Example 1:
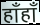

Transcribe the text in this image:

हाँहाँ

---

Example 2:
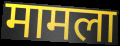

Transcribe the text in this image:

मामला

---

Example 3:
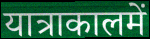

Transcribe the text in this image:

यात्राकालमें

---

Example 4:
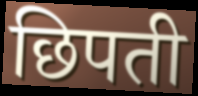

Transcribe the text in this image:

छिपती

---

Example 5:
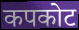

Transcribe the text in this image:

कपकोट